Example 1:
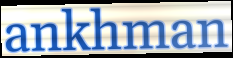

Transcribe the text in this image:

ankhman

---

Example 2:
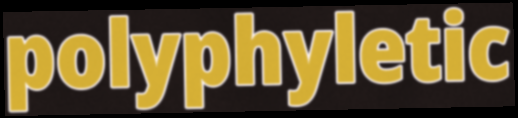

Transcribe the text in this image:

polyphyletic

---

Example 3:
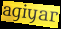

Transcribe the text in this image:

agiyar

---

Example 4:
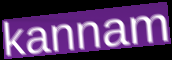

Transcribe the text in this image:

kannam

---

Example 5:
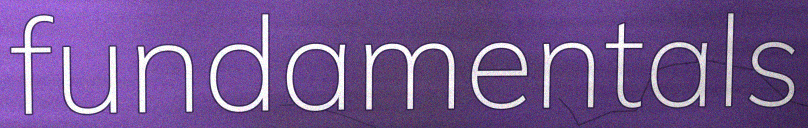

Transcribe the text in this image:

fundamentals